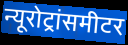
न्यूरोट्रांसमीटर